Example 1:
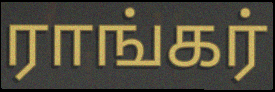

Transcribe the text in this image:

ராங்கர்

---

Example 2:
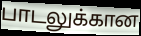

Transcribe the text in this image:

பாடலுக்கான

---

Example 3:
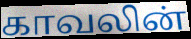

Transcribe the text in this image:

காவலின்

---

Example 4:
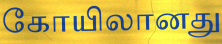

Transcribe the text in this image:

கோயிலானது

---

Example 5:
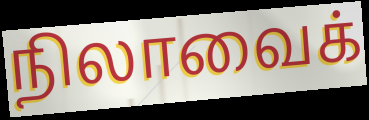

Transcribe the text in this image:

நிலாவைக்